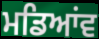
ਮਡਿਆਂਵ